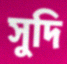
সুদি